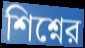
শিশ্নের